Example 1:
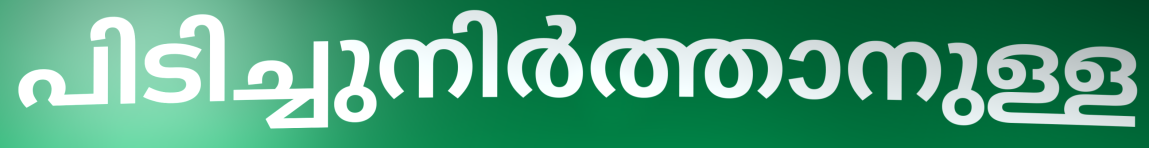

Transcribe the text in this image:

പിടിച്ചുനിർത്താനുള്ള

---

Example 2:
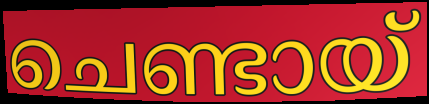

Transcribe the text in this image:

ചെണ്ടായ്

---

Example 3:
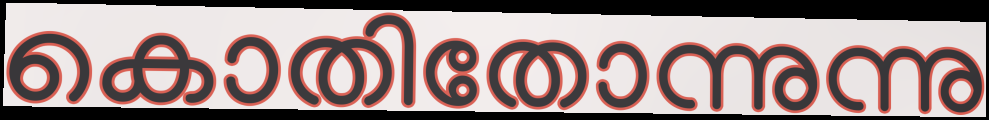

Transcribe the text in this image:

കൊതിതോന്നുന്നു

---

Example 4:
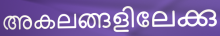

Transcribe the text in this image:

അകലങ്ങളിലേക്കു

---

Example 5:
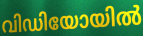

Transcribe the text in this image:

വിഡിയോയിൽ